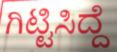
ಗಿಟ್ಟಿಸಿದ್ದೆ